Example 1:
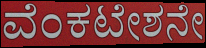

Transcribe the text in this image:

ವೆಂಕಟೇಶನೇ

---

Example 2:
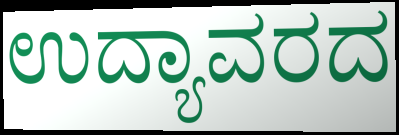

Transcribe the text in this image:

ಉದ್ಯಾವರದ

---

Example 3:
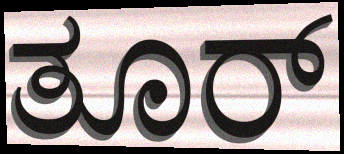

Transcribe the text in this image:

ತೂರ್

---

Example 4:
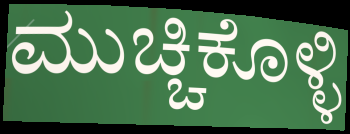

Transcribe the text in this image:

ಮುಚ್ಚಿಕೊಳ್ಳಿ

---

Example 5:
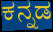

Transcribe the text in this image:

ಕನ್ನಡ